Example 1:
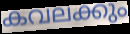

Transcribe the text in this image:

കവലക്കും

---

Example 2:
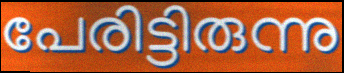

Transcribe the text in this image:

പേരിട്ടിരുന്നു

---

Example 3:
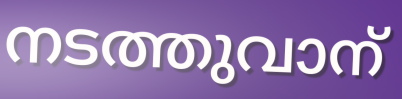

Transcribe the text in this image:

നടത്തുവാന്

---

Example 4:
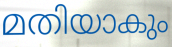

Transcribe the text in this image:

മതിയാകും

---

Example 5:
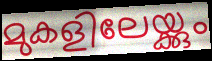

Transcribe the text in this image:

മുകളിലേയ്ക്കും